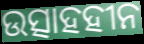
ଉତ୍ସାହହୀନ